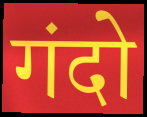
गंदो